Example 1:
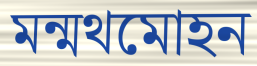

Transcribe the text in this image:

মন্মথমোহন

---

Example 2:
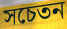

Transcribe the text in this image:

সচেতন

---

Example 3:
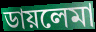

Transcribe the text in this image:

ডায়লেমা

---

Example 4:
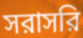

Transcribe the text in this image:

সরাসরি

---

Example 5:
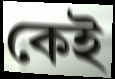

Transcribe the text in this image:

কেই